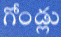
గోండ్లు